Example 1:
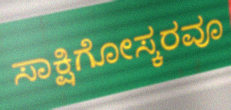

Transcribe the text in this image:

ಸಾಕ್ಷಿಗೋಸ್ಕರವೂ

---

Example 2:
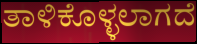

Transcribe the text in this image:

ತಾಳಿಕೊಳ್ಳಲಾಗದೆ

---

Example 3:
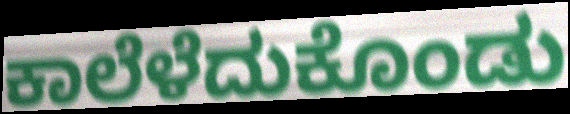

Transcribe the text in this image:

ಕಾಲೆಳೆದುಕೊಂಡು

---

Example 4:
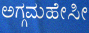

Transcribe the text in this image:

ಅಗ್ಗಮಹೇಸೀ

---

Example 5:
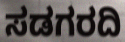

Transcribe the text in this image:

ಸಡಗರದಿ